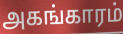
அகங்காரம்